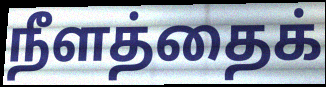
நீளத்தைக்